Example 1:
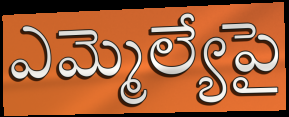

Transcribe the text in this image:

ఎమ్మెల్యేపై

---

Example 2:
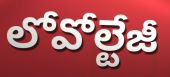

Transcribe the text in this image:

లోవోల్టేజీ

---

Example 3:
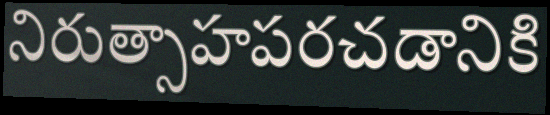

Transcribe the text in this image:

నిరుత్సాహపరచడానికి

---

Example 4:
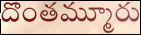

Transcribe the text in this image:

దొంతమ్మూరు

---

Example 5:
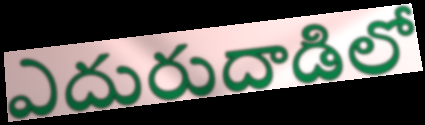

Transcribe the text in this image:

ఎదురుదాడిలో